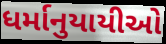
ધર્માનુયાયીઓ